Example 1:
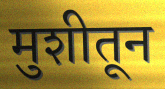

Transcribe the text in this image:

मुशीतून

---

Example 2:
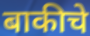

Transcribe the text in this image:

बाकीचे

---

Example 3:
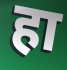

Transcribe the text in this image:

हा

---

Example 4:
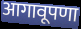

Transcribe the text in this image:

आगावूपणा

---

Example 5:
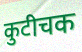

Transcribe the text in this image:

कुटीचक